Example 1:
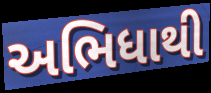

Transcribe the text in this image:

અભિધાથી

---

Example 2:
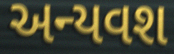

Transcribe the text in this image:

અન્યવશ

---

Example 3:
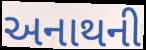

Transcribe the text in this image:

અનાથની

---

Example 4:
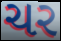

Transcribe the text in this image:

ચર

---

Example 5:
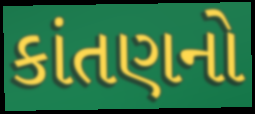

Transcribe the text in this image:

કાંતણનો